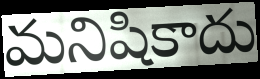
మనిషికాదు